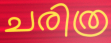
ചരിത്ര